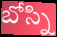
బోస్ని